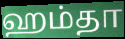
ஹம்தா